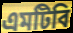
এমটিবি